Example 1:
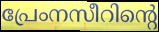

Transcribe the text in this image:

പ്രേംനസീറിന്റെ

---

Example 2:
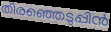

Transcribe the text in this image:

തിരഞ്ഞെടുപ്പിൻ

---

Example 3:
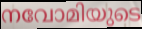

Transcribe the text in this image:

നവോമിയുടെ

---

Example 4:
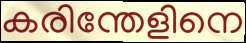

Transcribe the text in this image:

കരിന്തേളിനെ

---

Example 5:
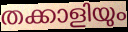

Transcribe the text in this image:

തക്കാളിയും